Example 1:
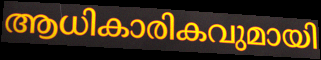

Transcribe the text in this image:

ആധികാരികവുമായി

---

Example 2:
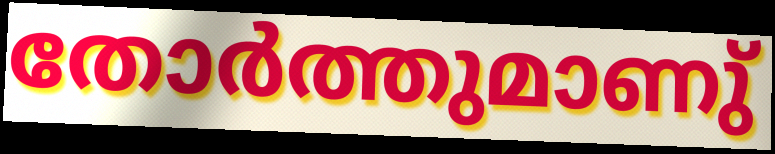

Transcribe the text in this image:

തോർത്തുമാണു്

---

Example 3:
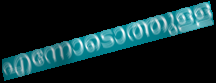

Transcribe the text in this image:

എന്നോടൊത്തുള്ള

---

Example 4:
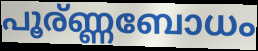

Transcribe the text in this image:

പൂര്ണ്ണബോധം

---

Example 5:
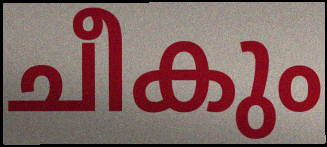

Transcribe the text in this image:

ചീകും